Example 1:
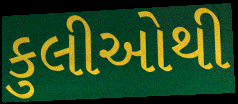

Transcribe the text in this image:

કુલીઓથી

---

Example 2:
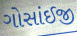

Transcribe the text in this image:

ગોસાંઈજી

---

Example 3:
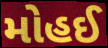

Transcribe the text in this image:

મોહઈ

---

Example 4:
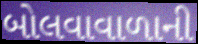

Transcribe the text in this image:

બોલવાવાળાની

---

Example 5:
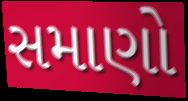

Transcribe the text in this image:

સમાણો